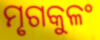
ମୃଗକୁଳଂ